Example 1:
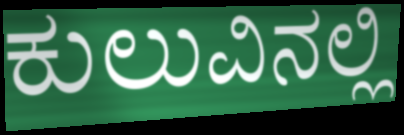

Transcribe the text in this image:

ಕುಲುವಿನಲ್ಲಿ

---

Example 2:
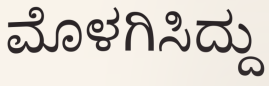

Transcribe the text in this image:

ಮೊಳಗಿಸಿದ್ದು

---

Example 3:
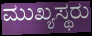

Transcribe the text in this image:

ಮುಖ್ಯಸ್ಥರು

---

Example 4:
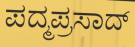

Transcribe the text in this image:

ಪದ್ಮಪ್ರಸಾದ್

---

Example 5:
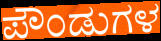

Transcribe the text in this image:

ಪೌಂಡುಗಳ